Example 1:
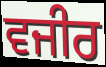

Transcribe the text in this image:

ਵਜੀਰ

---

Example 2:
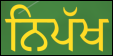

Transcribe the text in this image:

ਨਿਪੱਖ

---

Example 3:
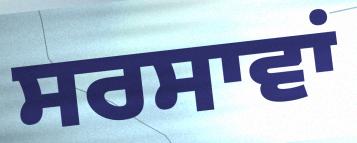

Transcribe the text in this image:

ਸਰਸਾਵਾਂ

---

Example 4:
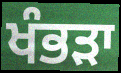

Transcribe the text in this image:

ਖੰਭੜਾ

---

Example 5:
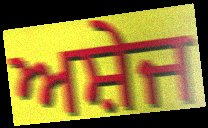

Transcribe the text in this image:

ਅਸ਼ੇਜ